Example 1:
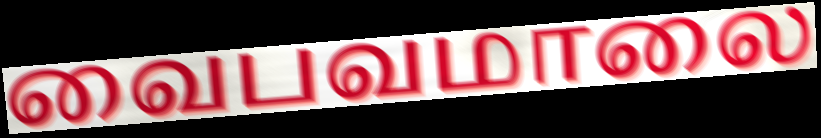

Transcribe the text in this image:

வைபவமாலை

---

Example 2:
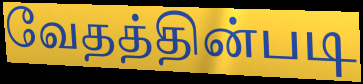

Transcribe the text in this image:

வேதத்தின்படி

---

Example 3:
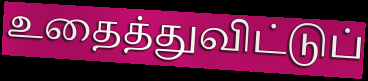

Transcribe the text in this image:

உதைத்துவிட்டுப்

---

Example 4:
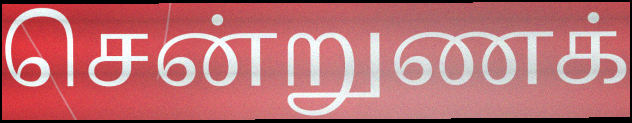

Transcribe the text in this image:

சென்றுணக்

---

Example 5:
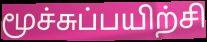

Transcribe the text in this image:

மூச்சுப்பயிற்சி